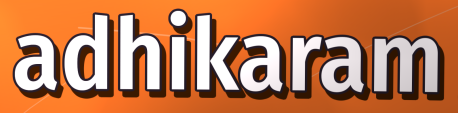
adhikaram